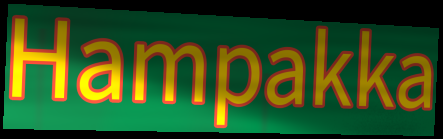
Hampakka